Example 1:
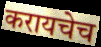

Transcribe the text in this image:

करायचेच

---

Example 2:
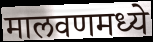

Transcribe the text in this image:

मालवणमध्ये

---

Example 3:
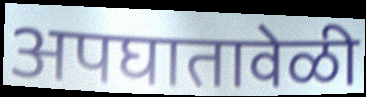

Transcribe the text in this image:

अपघातावेळी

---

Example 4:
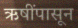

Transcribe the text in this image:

ऋषींपासून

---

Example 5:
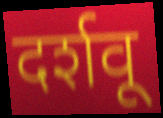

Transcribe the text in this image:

दर्शवू